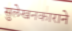
सुलेखनकाराने